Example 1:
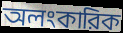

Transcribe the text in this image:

অলংকারিক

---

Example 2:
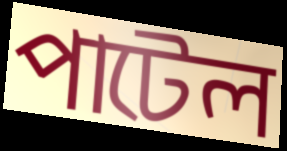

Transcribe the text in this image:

পাটেল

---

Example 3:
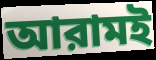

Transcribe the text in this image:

আরামই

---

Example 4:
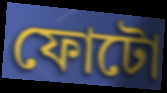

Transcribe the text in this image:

ফোটো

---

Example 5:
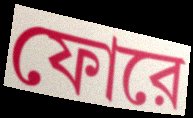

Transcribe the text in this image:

ফোরে